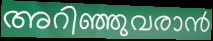
അറിഞ്ഞുവരാൻ